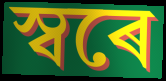
স্বৰে